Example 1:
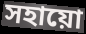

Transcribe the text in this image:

সহায়ো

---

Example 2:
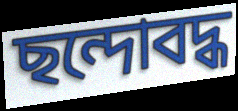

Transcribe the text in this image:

ছন্দোবদ্ধ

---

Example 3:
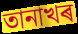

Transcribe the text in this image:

তানাখৰ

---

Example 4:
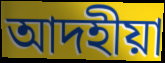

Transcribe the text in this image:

আদহীয়া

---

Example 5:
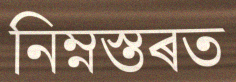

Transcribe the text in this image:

নিম্নস্তৰত